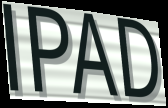
IPAD